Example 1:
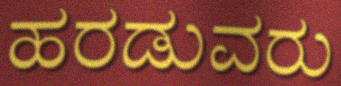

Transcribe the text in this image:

ಹರಡುವರು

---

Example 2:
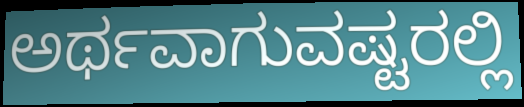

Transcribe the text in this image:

ಅರ್ಥವಾಗುವಷ್ಟರಲ್ಲಿ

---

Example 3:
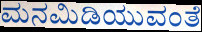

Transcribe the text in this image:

ಮನಮಿಡಿಯುವಂತೆ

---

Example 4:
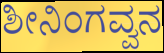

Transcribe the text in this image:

ಶೀನಿಂಗವ್ವನ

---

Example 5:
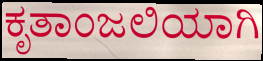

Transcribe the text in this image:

ಕೃತಾಂಜಲಿಯಾಗಿ